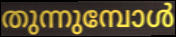
തുന്നുമ്പോൾ